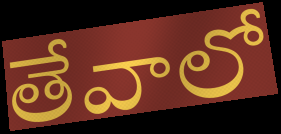
తేవాలో